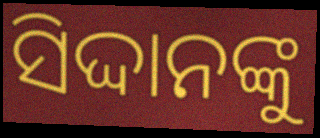
ସିଦ୍ଦାନଙ୍କୁ